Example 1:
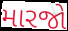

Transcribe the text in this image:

મારજો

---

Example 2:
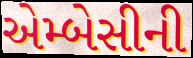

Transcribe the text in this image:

એમ્બેસીની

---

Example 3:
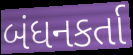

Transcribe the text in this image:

બંધનકર્તા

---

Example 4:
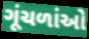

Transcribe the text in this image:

ગૂંચળાંઓ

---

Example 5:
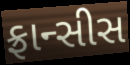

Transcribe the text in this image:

ફ્રાન્સીસ